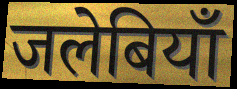
जलेबियाँ